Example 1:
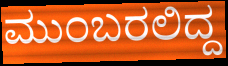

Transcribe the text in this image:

ಮುಂಬರಲಿದ್ದ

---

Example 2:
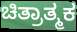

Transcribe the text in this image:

ಚಿತ್ರಾತ್ಮಕ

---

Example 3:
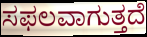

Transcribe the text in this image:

ಸಫಲವಾಗುತ್ತದೆ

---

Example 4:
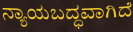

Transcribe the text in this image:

ನ್ಯಾಯಬದ್ಧವಾಗಿದೆ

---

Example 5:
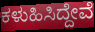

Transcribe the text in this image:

ಕಳುಹಿಸಿದ್ದೇವೆ